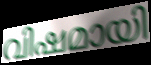
വിഷമായി